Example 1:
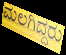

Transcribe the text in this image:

ಮಲಗಿದ್ದರು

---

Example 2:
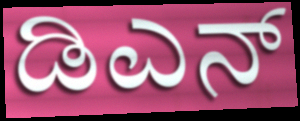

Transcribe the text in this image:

ಡಿಎನ್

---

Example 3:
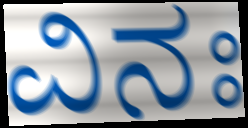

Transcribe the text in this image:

ವಿನಃ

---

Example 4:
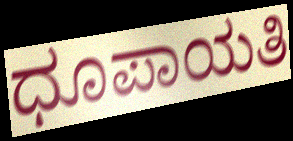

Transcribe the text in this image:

ಧೂಪಾಯತಿ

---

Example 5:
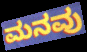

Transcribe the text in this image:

ಮನವು